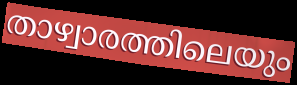
താഴ്വാരത്തിലെയും